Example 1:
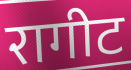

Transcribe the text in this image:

रागीट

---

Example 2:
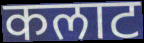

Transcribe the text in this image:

कलाट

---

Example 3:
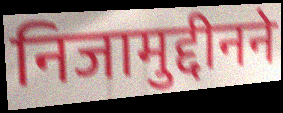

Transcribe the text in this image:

निजामुद्दीनने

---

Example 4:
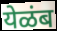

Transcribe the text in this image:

येळंब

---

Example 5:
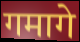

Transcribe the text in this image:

गमागे